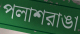
পলাশরাঙা